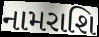
નામરાશિ